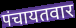
पंचायतवार